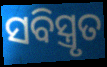
ସବିସ୍ତ୍ରୃତ